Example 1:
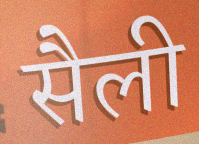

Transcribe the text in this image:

सैली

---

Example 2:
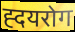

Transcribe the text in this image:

ह्दयरोग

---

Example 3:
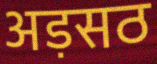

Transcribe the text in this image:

अड़सठ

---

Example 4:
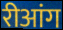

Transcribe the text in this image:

रीआंग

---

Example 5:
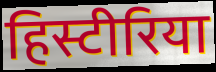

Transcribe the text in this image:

हिस्टीरिया